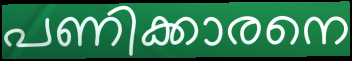
പണിക്കാരനെ